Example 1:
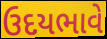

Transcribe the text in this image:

ઉદયભાવે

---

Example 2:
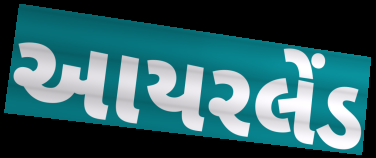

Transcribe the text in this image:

આયરલેંડ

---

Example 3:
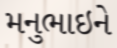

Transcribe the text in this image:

મનુભાઇને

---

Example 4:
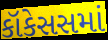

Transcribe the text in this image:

કૉકેસસમાં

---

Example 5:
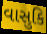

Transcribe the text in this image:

વાસુકિ